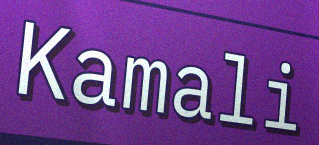
Kamali